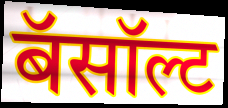
बॅसॉल्ट